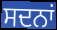
ਸਦਨਾਂ